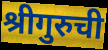
श्रीगुरुची